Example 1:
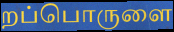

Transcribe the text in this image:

றப்பொருளை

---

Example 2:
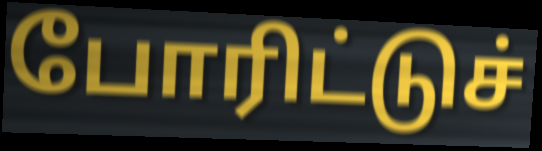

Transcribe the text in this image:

போரிட்டுச்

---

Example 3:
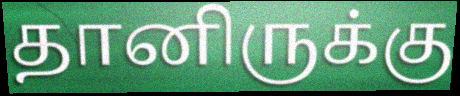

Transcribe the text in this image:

தானிருக்கு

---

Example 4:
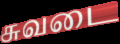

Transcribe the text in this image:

சுவடை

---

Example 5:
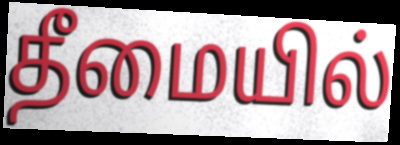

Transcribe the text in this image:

தீமையில்